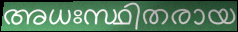
അധഃസ്ഥിതരായ